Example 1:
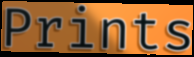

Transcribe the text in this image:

Prints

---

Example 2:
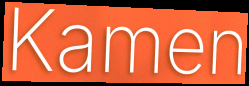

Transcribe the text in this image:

Kamen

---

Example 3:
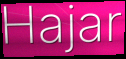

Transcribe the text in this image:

Hajar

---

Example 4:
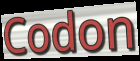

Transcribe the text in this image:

Codon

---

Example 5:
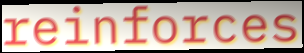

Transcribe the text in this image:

reinforces